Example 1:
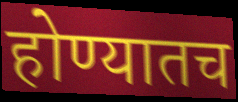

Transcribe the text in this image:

होण्यातच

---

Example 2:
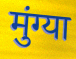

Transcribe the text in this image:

मुंग्या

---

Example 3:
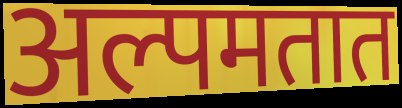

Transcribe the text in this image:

अल्पमतात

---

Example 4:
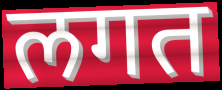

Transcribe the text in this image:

लगत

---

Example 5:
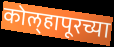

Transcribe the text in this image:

कोल्हापूरच्या